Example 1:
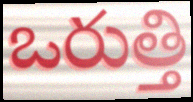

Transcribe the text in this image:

ఒరుత్తి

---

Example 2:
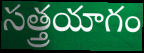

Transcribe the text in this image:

సత్త్రయాగం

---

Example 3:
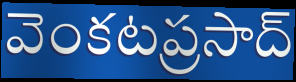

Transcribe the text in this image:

వెంకటప్రసాద్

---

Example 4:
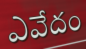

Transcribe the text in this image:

ఎవేదం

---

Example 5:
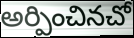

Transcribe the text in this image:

అర్పించినచో